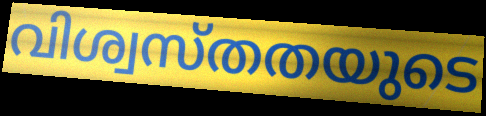
വിശ്വസ്തതയുടെ